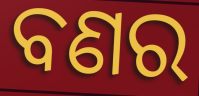
ବଣର